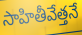
సాహితీవేత్తనే